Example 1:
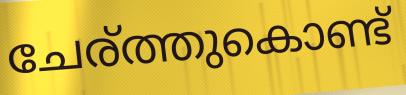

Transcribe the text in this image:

ചേര്ത്തുകൊണ്ട്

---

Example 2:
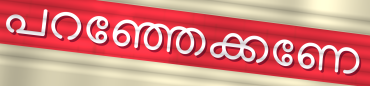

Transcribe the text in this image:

പറഞ്ഞേക്കണേ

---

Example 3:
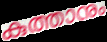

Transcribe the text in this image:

കുത്താനും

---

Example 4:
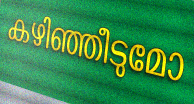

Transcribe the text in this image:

കഴിഞ്ഞീടുമോ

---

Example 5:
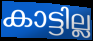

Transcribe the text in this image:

കാട്ടില്ല